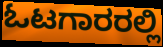
ಓಟಗಾರರಲ್ಲಿ